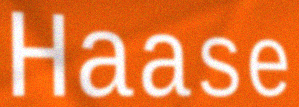
Haase